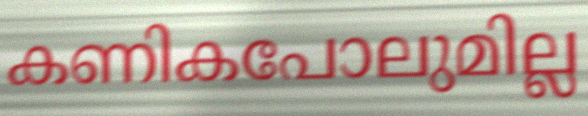
കണികപോലുമില്ല